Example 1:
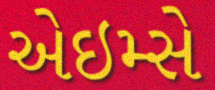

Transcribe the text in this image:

એઇમ્સે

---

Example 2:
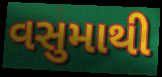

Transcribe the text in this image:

વસુમાથી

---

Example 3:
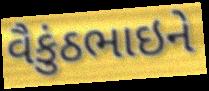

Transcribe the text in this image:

વૈકુંઠભાઇને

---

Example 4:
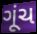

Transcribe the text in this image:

ગૂંચ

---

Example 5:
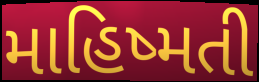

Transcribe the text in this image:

માહિષ્મતી